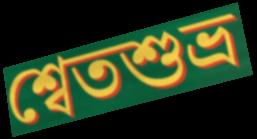
শ্বেতশুভ্র